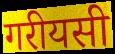
गरीयसी